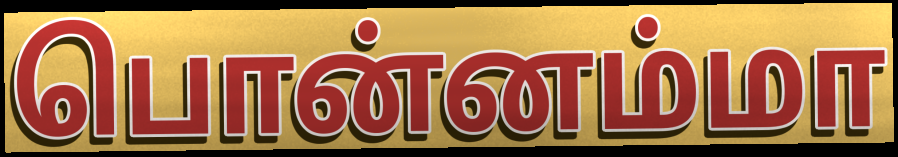
பொன்னம்மா